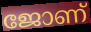
ജോണ്